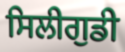
ਸਿਲੀਗੁਡੀ